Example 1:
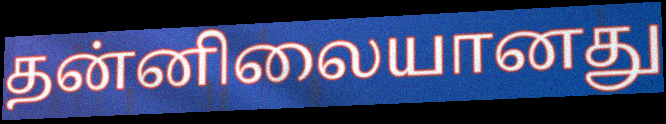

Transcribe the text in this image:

தன்னிலையானது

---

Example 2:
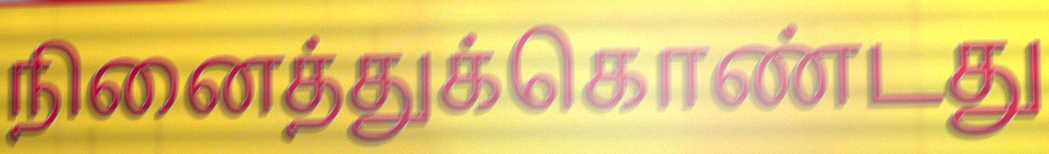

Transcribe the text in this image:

நினைத்துக்கொண்டது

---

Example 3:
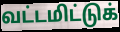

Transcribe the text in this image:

வட்டமிட்டுக்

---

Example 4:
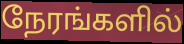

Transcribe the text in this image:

நேரங்களில்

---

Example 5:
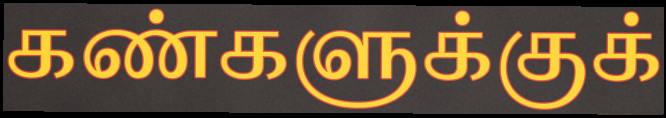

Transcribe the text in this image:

கண்களுக்குக்